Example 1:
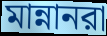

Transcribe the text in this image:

মান্নানরা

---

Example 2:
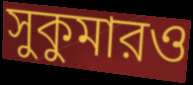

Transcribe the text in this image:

সুকুমারও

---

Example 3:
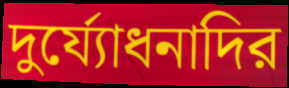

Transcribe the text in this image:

দুর্য্যোধনাদির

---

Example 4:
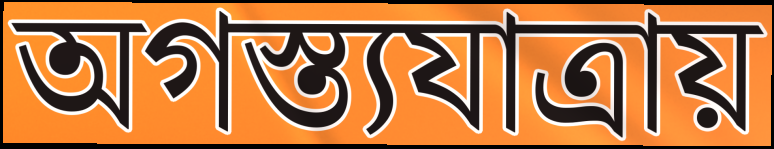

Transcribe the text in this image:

অগস্ত্যযাত্রায়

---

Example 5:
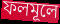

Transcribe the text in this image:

ফলমূলে